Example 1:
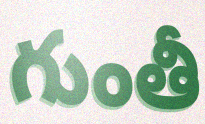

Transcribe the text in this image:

గుంతీ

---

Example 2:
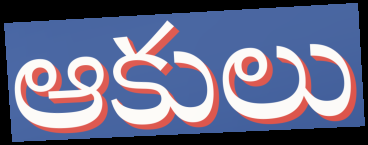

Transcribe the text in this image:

ఆకులు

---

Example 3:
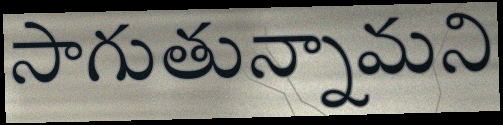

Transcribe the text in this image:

సాగుతున్నామని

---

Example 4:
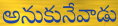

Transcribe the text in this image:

అనుకునేవాడు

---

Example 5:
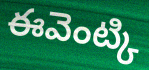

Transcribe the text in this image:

ఈవెంట్కి